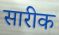
सारीक